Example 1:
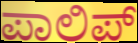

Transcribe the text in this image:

ಪಾಲಿಪ್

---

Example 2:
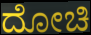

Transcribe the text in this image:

ದೋಚಿ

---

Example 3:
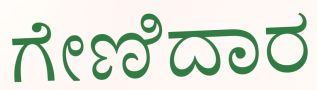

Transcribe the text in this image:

ಗೇಣಿದಾರ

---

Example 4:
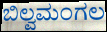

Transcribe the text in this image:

ಬಿಲ್ವಮಂಗಲ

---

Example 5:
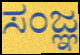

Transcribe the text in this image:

ಸಂಜ್ಞ